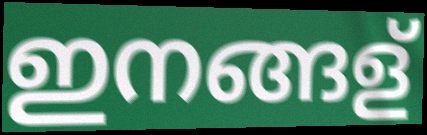
ഇനങ്ങള്